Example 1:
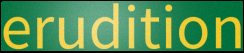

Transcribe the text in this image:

erudition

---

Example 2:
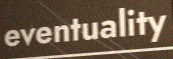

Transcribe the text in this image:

eventuality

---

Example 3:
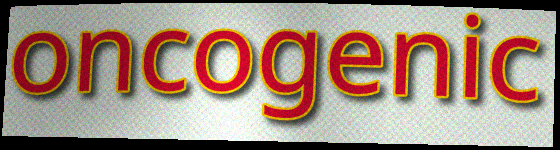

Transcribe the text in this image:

oncogenic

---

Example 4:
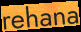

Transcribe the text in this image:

rehana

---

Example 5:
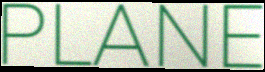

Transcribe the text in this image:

PLANE